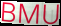
BMU